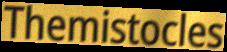
Themistocles